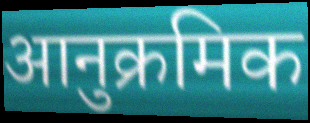
आनुक्रमिक